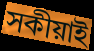
সকীয়াই